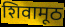
शिवामूठ